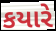
કયારે